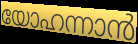
യോഹന്നാൻ